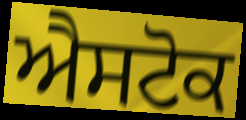
ਐਸਟੋਕ